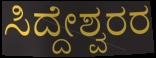
ಸಿದ್ದೇಶ್ವರರ